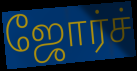
ஜோர்ச்